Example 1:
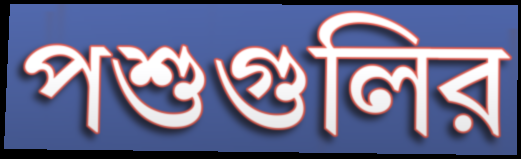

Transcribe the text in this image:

পশুগুলির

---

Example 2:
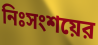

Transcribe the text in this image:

নিঃসংশয়ের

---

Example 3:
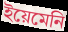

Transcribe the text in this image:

ইয়েমেনি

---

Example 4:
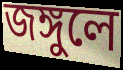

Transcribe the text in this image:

জঙ্গুলে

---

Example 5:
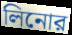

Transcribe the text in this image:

লিনোর